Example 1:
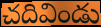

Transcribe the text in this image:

చదివిండు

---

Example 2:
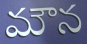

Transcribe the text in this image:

మౌన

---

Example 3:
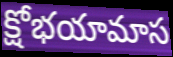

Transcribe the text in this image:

క్షోభయామాస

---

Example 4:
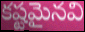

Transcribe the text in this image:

కష్టమైనవి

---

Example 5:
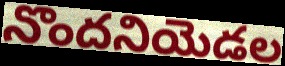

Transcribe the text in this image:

నొందనియెడల